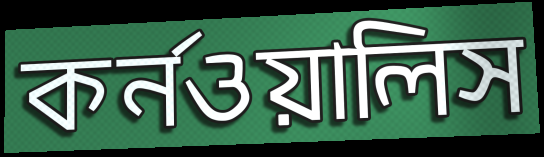
কর্নওয়ালিস